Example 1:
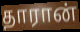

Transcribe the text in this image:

தாரான்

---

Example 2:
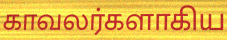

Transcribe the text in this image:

காவலர்களாகிய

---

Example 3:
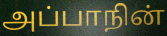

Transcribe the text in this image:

அப்பாநின்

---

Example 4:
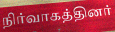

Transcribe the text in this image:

நிர்வாகத்தினர்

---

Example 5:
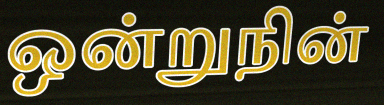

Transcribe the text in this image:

ஒன்றுநின்